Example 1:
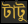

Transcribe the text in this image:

টাটু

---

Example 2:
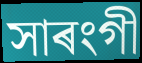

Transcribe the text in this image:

সাৰংগী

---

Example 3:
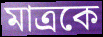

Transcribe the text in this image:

মাত্ৰকে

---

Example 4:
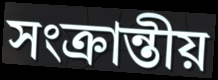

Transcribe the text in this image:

সংক্ৰান্তীয়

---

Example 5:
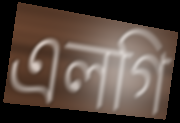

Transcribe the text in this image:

এলগি